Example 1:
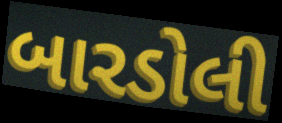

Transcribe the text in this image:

બારડોલી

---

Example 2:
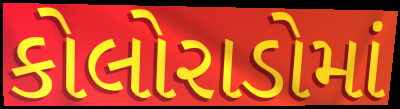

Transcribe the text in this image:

કોલોરાડોમાં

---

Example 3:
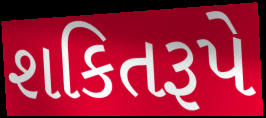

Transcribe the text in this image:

શકિતરૂપે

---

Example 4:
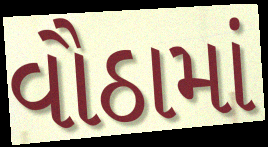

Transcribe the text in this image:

વૌઠામાં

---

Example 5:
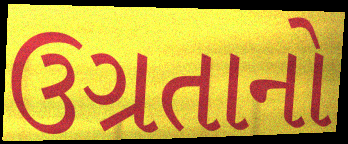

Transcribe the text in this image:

ઉગ્રતાનો